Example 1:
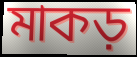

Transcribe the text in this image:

মাকড়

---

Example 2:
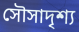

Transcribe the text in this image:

সৌসাদৃশ্য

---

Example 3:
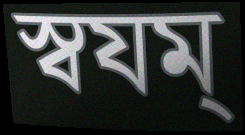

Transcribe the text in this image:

স্বযম্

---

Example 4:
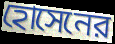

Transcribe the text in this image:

হোসেনের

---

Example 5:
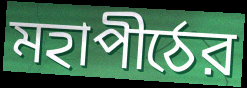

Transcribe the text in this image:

মহাপীঠের